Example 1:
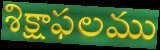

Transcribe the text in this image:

శిక్షాఫలము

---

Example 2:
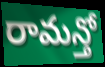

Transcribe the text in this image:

రామన్తో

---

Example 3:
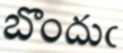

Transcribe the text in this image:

బొందుఁ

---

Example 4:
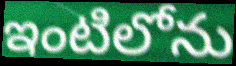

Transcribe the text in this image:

ఇంటిలోను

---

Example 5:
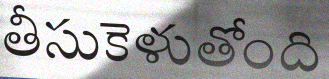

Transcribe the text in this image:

తీసుకెళుతోంది